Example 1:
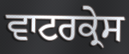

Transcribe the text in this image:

ਵਾਟਰਕ੍ਰੇਸ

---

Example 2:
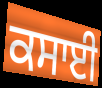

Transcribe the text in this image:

ਕਸਾਈ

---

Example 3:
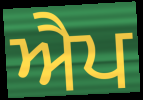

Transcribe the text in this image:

ਐਪ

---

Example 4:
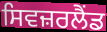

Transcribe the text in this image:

ਸਿਵਜ਼ਰਲੈਂਡ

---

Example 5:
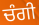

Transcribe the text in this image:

ਚੰਗੀ